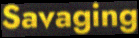
Savaging